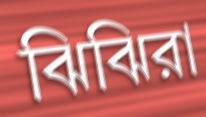
ঝিঝিরা